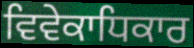
ਵਿਵੇਕਾਧਿਕਾਰ